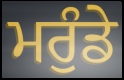
ਮਰੁੰਡੇ